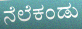
ನೆಲೆಕಂಡು